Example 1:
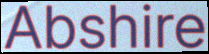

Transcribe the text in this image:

Abshire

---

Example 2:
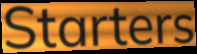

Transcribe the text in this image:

Starters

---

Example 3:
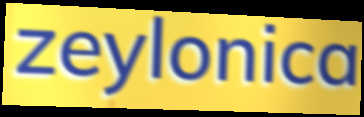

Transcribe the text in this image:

zeylonica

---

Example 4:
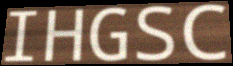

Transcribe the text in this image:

IHGSC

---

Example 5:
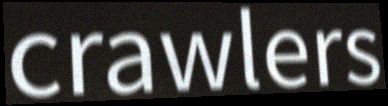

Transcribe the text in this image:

crawlers